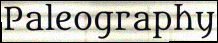
Paleography